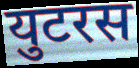
युटरस